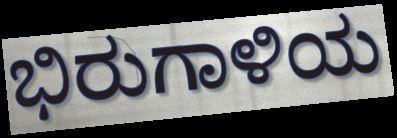
ಭಿರುಗಾಳಿಯ